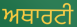
ਅਥਾਰਟੀ